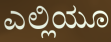
ಎಲ್ಲಿಯೂ